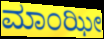
ಮಾಂಝೀ